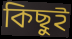
কিছুই